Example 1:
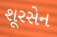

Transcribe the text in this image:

શૂરસેન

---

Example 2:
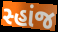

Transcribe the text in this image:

સ્હાંજ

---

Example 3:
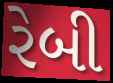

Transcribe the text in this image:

રેબી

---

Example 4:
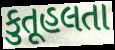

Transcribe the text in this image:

કુતૂહલતા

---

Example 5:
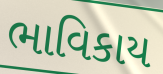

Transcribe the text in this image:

ભાવિકાય